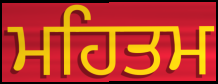
ਮਹਿਤਮ